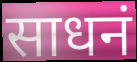
साधनं